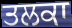
ਤਲਕਾ